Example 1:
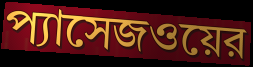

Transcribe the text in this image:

প্যাসেজওয়ের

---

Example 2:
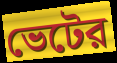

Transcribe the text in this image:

ভেটের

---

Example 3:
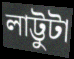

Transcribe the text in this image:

লাট্টুটা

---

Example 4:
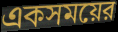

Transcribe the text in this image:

একসময়ের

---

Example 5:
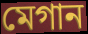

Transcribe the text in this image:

মেগান